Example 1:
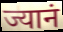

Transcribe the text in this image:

ज्यानं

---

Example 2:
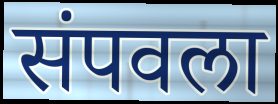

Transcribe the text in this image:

संपवला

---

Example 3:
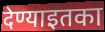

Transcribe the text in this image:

देण्याइतका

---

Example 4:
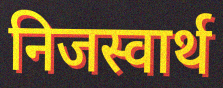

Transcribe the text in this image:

निजस्वार्थ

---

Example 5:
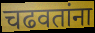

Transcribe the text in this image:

चढवतांना